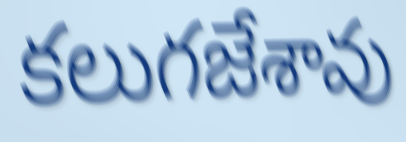
కలుగజేశావు